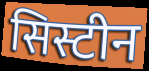
सिस्टीन